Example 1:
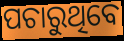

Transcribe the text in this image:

ପଚାରୁଥିବେ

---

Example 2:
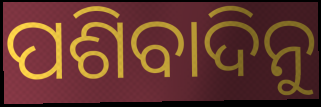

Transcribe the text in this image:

ପଶିବାଦିନୁ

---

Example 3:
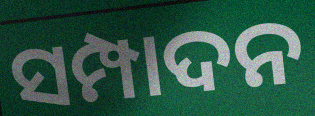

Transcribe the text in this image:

ସମ୍ପାଦନ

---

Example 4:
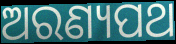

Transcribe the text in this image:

ଅରଣ୍ୟପଥ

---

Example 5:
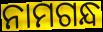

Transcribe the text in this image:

ନାମଗନ୍ଧ